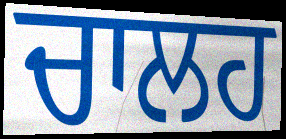
ਚਾਲਹ